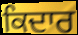
ਕਿਦਾਰ